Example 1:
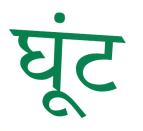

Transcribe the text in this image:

घूंट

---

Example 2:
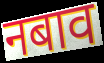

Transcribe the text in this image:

नबाव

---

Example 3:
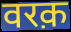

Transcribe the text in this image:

वरक़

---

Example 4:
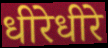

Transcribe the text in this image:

धीरेधीरे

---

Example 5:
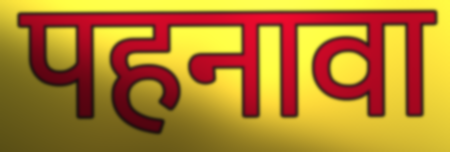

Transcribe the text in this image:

पहनावा